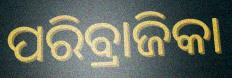
ପରିବ୍ରାଜିକା